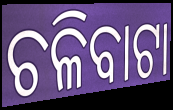
ଚଳିବାଟା